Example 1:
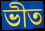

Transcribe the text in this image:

ভীত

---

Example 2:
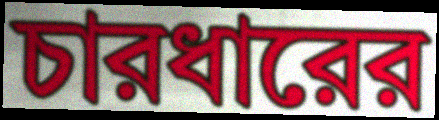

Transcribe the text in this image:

চারধারের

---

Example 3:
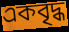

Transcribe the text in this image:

একবৃদ্ধ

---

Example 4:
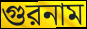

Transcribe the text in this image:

গুরনাম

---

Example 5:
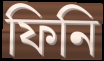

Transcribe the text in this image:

ফিনি